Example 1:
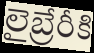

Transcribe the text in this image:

లైబ్రేరీకి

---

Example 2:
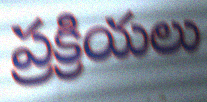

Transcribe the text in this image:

ప్రక్రియలు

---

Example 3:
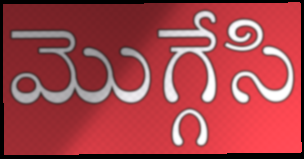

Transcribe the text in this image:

మొగ్గేసి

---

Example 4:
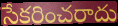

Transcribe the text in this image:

సేకరించరాదు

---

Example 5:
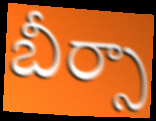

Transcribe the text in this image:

బీర్సా